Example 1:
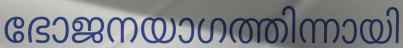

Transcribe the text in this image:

ഭോജനയാഗത്തിന്നായി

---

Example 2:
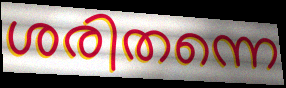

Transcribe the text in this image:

ശരിതന്നെ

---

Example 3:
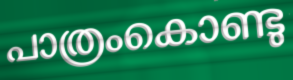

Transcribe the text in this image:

പാത്രംകൊണ്ടു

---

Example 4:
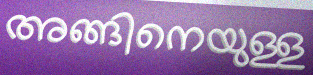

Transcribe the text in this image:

അങ്ങിനെയുള്ള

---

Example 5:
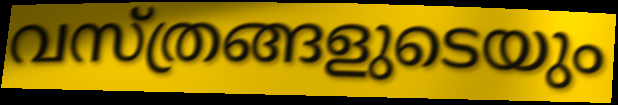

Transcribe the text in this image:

വസ്ത്രങ്ങളുടെയും